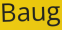
Baug